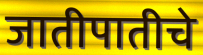
जातीपातीचे